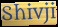
Shivji